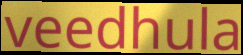
veedhula